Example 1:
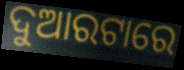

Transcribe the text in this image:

ଦୁଆରଟାରେ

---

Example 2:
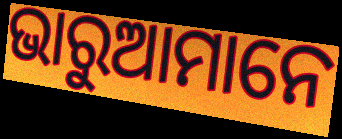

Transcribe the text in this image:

ଭାରୁଆମାନେ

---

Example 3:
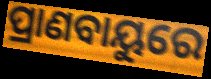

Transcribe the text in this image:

ପ୍ରାଣବାୟୁରେ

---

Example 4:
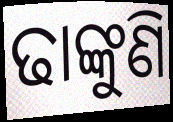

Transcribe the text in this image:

ଢାଙ୍କୁଣି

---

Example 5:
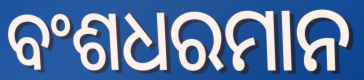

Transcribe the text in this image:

ବଂଶଧରମାନ